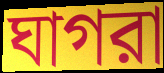
ঘাগরা